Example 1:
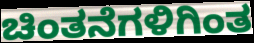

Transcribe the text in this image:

ಚಿಂತನೆಗಳಿಗಿಂತ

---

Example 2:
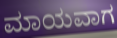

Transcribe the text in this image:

ಮಾಯವಾಗ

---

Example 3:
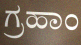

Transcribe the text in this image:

ಗ್ರಹಾಂ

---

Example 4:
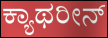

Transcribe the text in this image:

ಕ್ಯಾಥರೀನ್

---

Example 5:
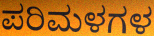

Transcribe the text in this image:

ಪರಿಮಳಗಳ